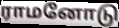
ராமனோடு